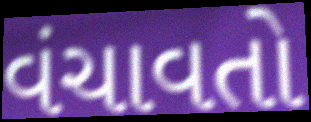
વંચાવતો